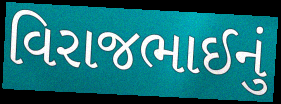
વિરાજભાઈનું